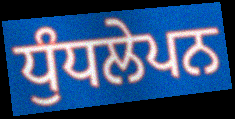
ਧੁੰਧਲੇਪਨ